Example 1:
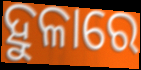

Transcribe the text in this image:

ହୁଳାରେ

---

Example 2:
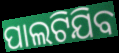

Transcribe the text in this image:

ପାଲଟିଯିବ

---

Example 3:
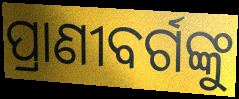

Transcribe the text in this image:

ପ୍ରାଣୀବର୍ଗଙ୍କୁ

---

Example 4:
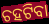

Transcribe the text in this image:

ଚହଟିବା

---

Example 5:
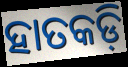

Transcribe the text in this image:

ହାତକଡ଼ି